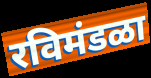
रविमंडळा